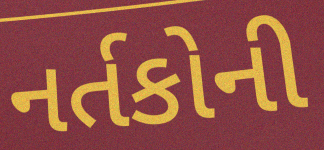
નર્તકોની